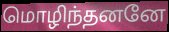
மொழிந்தனனே